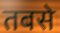
तबसे